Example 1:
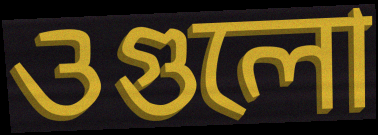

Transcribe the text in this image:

ওগুলো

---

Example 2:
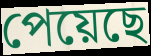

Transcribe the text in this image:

পেয়েছে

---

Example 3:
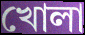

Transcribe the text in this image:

খোলা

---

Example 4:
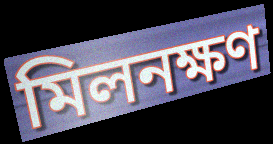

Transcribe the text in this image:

মিলনক্ষণ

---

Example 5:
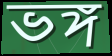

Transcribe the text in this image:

ভঙ্গ